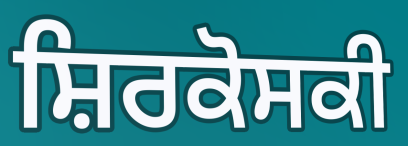
ਸ਼ਿਰਕੋਸਕੀ